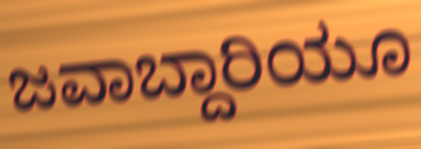
ಜವಾಬ್ದಾರಿಯೂ